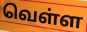
வெள்ள